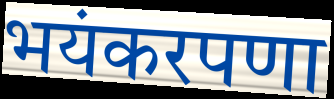
भयंकरपणा